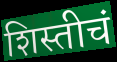
शिस्तीचं